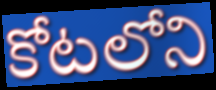
కోటలోని